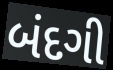
બંદગી